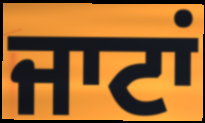
ਜਾਟਾਂ